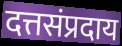
दत्तसंप्रदाय